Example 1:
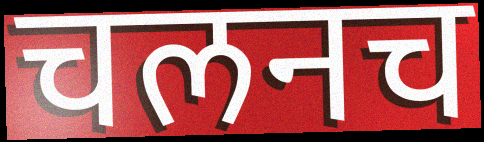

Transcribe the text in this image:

चलनच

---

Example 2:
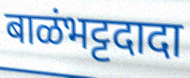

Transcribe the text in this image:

बाळंभट्टदादा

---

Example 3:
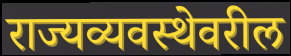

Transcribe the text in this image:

राज्यव्यवस्थेवरील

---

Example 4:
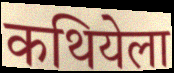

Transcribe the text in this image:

कथियेला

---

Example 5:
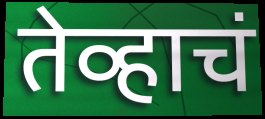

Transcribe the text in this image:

तेव्हाचं